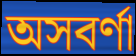
অসবর্ণা